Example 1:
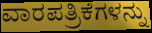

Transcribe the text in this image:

ವಾರಪತ್ರಿಕೆಗಳನ್ನು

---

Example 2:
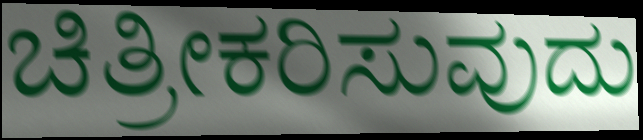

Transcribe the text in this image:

ಚಿತ್ರೀಕರಿಸುವುದು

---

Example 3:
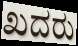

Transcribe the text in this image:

ಖದರು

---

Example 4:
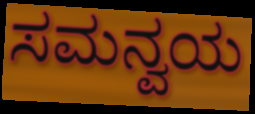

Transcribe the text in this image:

ಸಮನ್ವಯ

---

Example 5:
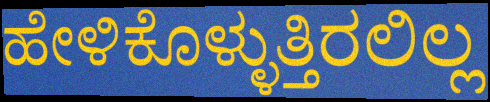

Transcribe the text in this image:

ಹೇಳಿಕೊಳ್ಳುತ್ತಿರಲಿಲ್ಲ